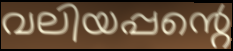
വലിയപ്പന്റെ